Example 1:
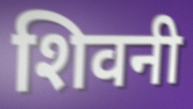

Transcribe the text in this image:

शिवनी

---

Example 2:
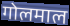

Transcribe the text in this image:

गोलमाल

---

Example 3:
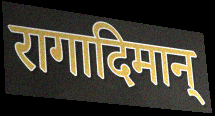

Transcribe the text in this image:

रागादिमान्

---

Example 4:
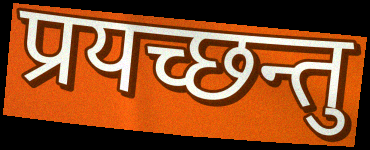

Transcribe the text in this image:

प्रयच्छन्तु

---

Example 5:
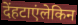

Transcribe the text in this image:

देंहटाएंलेकिन